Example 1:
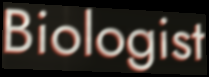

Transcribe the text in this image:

Biologist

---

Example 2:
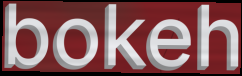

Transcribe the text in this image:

bokeh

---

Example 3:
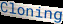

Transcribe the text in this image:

Cloning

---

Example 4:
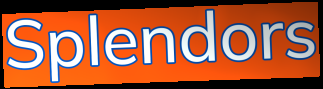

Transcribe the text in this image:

Splendors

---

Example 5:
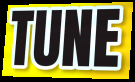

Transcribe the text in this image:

TUNE